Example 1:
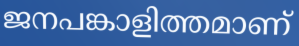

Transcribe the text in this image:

ജനപങ്കാളിത്തമാണ്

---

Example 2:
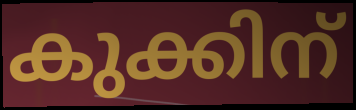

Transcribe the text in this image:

കുക്കിന്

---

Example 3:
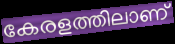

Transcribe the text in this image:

കേരളത്തിലാണ്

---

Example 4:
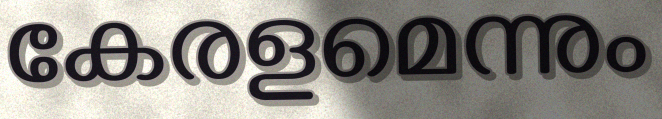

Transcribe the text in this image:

കേരളമെന്നും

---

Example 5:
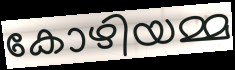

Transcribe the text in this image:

കോഴിയമ്മ